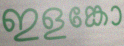
ഇളങ്കോ